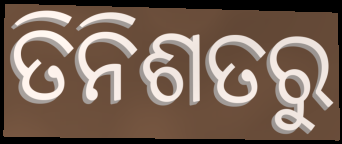
ତିନିଶତରୁ